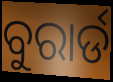
ବୁରାର୍ଡ